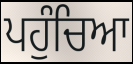
ਪਹੁੰਚਿਆ